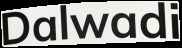
Dalwadi